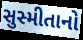
સુસ્મીતાનો